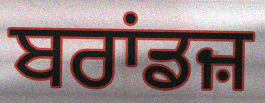
ਬਰਾਂਡਜ਼